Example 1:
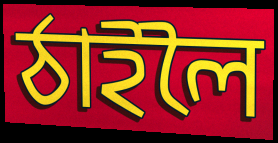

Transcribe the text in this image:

ঠাইলৈ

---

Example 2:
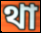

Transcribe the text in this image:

থা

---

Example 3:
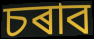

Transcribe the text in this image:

চৰাব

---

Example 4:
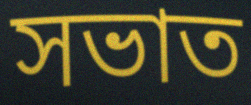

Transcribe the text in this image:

সভাত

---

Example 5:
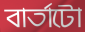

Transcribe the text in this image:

বাৰ্তাটো